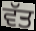
ਵੱਤ